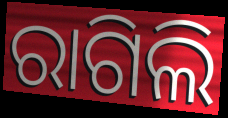
ରାଗିଲି